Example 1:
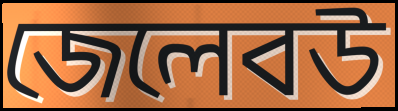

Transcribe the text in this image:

জেলেবউ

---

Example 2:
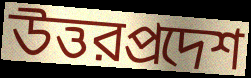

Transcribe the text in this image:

উত্তরপ্রদেশ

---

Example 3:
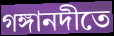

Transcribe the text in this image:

গঙ্গানদীতে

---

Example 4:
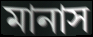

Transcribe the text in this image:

মানাস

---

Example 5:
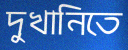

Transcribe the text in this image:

দুখানিতে